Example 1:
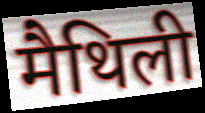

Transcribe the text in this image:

मैथिली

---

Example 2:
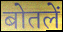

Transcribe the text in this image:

बोतलें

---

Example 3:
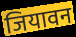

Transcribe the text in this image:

जियावन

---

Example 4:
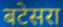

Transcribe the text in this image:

बटेसरा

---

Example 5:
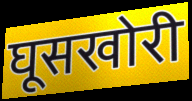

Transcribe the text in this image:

घूसखोरी